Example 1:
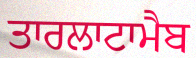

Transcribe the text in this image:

ਤਾਰਲਾਟਾਮੈਬ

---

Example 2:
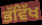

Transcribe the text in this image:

ਭੱਵਿੱਖ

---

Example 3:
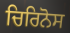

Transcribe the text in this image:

ਚਿਰਿਨੋਸ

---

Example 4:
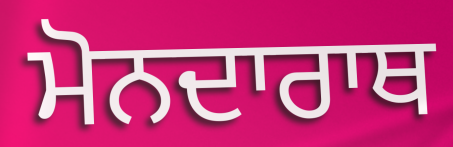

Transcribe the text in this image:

ਮੋਨਦਾਰਾਥ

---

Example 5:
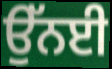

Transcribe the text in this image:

ਉੱਨਈ